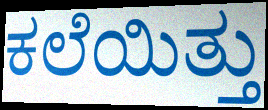
ಕಲೆಯಿತ್ತು